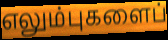
எலும்புகளைப்